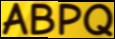
ABPQ